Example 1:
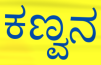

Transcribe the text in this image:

ಕಣ್ವನ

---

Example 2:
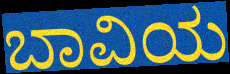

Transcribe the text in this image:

ಬಾವಿಯ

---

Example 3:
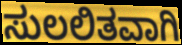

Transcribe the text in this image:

ಸುಲಲಿತವಾಗಿ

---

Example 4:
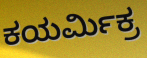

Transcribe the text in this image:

ಕಯರ್ಮಿಕ್ರ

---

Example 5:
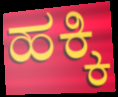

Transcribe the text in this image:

ಹಕ್ಕಿ